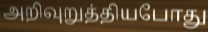
அறிவுறுத்தியபோது